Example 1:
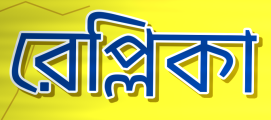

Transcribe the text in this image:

রেপ্লিকা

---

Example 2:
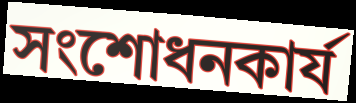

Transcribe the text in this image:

সংশোধনকার্য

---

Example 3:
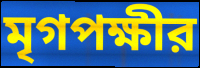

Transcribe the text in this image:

মৃগপক্ষীর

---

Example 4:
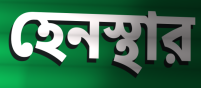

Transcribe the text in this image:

হেনস্থার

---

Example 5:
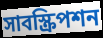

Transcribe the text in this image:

সাবস্ক্রিপশন